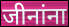
जीनांना